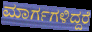
ಮಾರ್ಗಗಳಿದ್ದರೆ